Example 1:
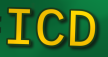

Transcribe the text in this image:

ICD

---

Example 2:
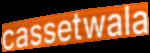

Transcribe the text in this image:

cassetwala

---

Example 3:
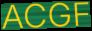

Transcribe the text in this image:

ACGF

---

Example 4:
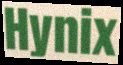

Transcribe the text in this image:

Hynix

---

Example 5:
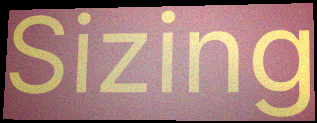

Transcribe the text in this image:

Sizing